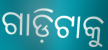
ଗାଡ଼ିଟାକୁ